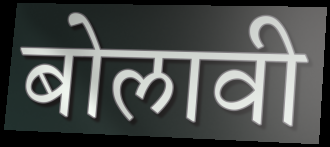
बोलावी